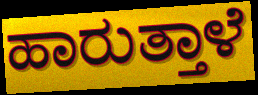
ಹಾರುತ್ತಾಳೆ